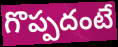
గొప్పదంటే